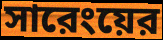
সারেংয়ের